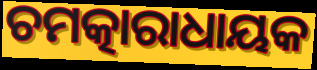
ଚମତ୍କାରାଧାୟକ